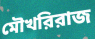
মৌখরিরাজ